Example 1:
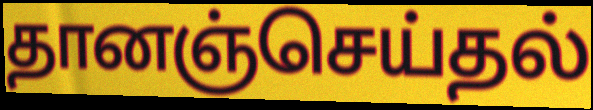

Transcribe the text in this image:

தானஞ்செய்தல்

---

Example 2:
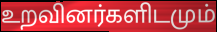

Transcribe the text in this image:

உறவினர்களிடமும்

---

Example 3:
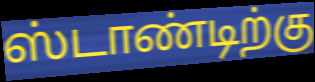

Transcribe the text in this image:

ஸ்டாண்டிற்கு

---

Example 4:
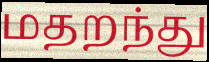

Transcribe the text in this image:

மதறந்து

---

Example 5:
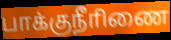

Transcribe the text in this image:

பாக்குநீரிணை